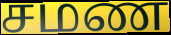
சமண